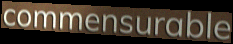
commensurable